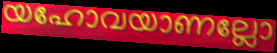
യഹോവയാണല്ലോ